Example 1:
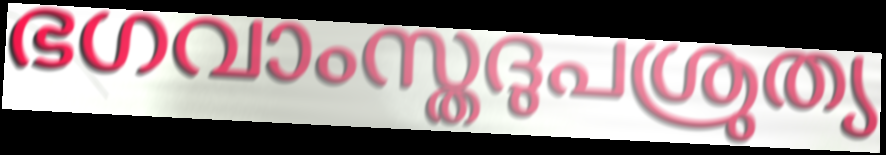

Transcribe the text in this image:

ഭഗവാംസ്തദുപശ്രുത്യ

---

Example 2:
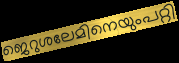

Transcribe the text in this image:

ജെറുശലേമിനെയുംപറ്റി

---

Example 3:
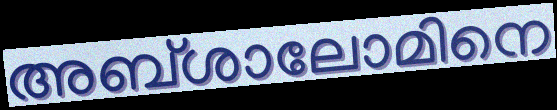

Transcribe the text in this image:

അബ്ശാലോമിനെ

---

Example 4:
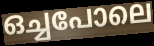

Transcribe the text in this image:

ഒച്ചപോലെ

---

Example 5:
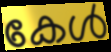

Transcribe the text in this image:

കേൾ